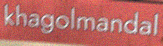
khagolmandal